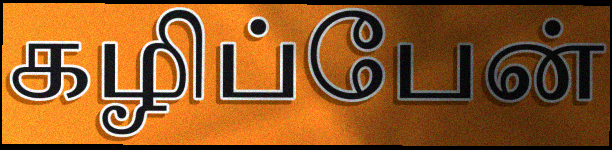
கழிப்பேன்